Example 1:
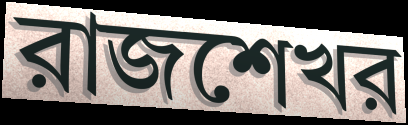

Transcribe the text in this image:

রাজশেখর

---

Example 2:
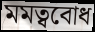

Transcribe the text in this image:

মমত্ববোধ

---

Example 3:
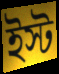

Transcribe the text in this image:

ইস্ট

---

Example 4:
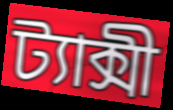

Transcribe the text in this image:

ট্যাক্সী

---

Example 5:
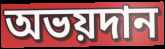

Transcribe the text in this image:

অভয়দান